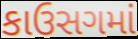
કાઉસગમાં